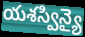
యశస్విన్యై